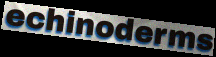
echinoderms